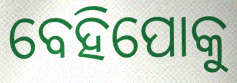
ବେହିପୋକୁ